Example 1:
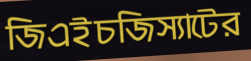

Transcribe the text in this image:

জিএইচজিস্যাটের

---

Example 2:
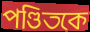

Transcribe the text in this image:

পণ্ডিতকে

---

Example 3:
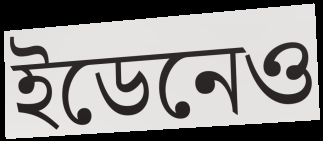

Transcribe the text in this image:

ইডেনেও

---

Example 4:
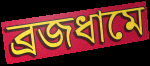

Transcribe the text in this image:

ব্রজধামে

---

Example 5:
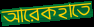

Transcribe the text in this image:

আরেকহাতে